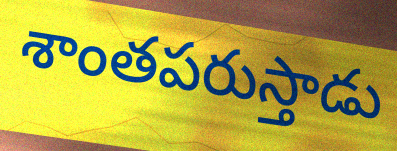
శాంతపరుస్తాడు